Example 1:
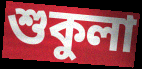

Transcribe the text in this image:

শুকুলা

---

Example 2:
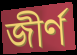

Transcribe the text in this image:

জীৰ্ণ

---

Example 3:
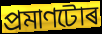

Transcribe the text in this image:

প্ৰমাণটোৰ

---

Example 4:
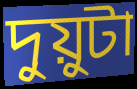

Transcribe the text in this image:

দুয়ুটা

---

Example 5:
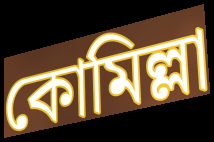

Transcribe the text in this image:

কোমিল্লা